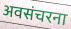
अवसंचरना